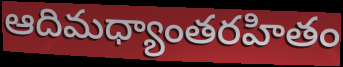
ఆదిమధ్యాంతరహితం